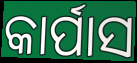
କାର୍ପାସ